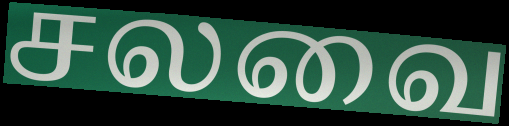
சலவை